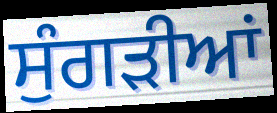
ਸੁੰਗੜੀਆਂ